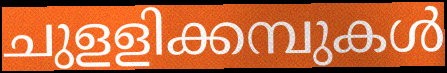
ചുളളിക്കമ്പുകൾ